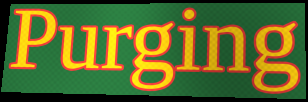
Purging